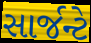
સાર્જન્ટે